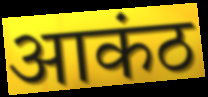
आकंठ